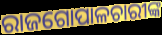
ରାଜଗୋପାଳଚାରୀଙ୍କ